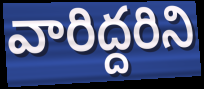
వారిద్దరిని